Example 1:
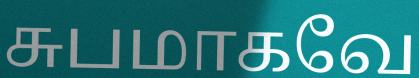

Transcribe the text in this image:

சுபமாகவே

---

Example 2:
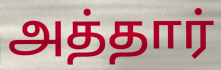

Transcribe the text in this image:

அத்தார்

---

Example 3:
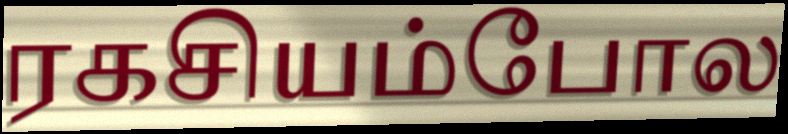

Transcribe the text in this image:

ரகசியம்போல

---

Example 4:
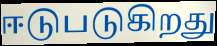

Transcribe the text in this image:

ஈடுபடுகிறது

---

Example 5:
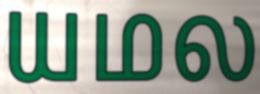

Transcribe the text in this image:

யமல